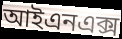
আইএনএক্স